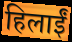
हिलाईं